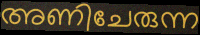
അണിചേരുന്ന